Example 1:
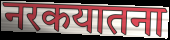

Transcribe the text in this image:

नरकयातना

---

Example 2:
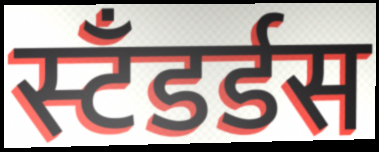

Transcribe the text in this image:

स्टँडर्डस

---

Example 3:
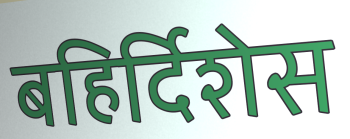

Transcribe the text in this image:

बहिर्दिशेस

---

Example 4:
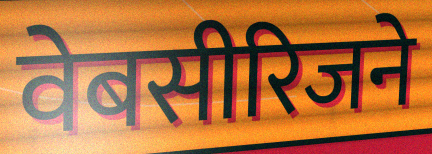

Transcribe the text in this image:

वेबसीरिजने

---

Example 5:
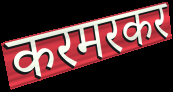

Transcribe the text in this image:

करमरकर